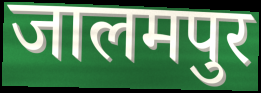
जालमपुर